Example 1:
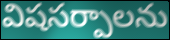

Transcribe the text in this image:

విషసర్పాలను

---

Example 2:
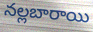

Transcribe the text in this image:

నల్లబారాయి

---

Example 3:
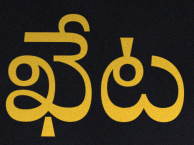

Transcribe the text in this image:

ఖేట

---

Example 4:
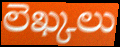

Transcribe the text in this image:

లెఖ్కలు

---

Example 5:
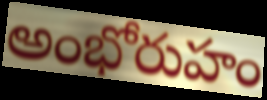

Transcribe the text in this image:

అంభోరుహం